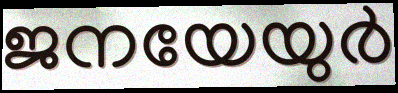
ജനയേയുർ